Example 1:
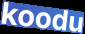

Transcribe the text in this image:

koodu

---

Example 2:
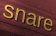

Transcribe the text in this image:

snare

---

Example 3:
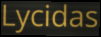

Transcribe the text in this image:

Lycidas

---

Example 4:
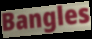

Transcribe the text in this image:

Bangles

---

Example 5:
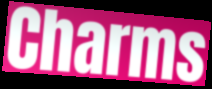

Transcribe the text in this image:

Charms